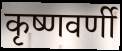
कृष्णवर्णी